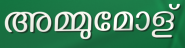
അമ്മുമോള്